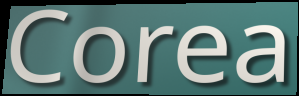
Corea